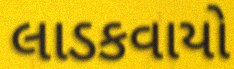
લાડકવાયો